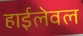
हाईलेवल